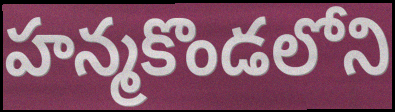
హన్మకొండలోని